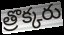
త్రొక్కరు